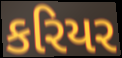
કરિયર